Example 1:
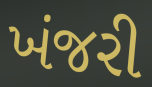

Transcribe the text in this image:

ખંજરી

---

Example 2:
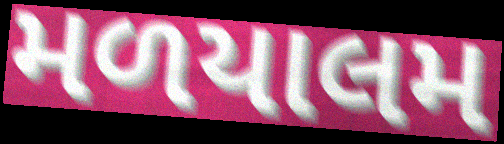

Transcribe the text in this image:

મળયાલમ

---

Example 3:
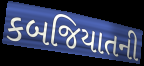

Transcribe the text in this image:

કબજિયાતની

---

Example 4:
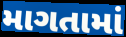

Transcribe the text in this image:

માગતામાં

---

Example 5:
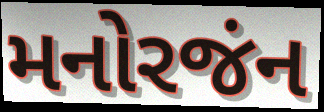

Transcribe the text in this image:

મનોરજંન